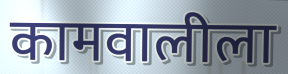
कामवालीला